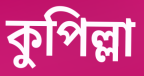
কুপিল্লা